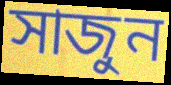
সাজুন